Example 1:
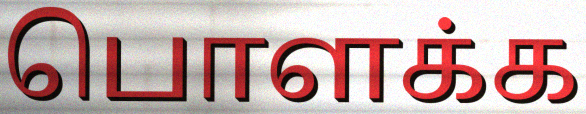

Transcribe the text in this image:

பொளக்க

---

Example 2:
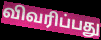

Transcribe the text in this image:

விவரிப்பது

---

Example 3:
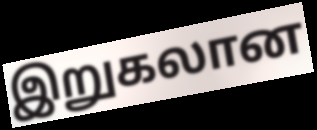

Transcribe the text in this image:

இறுகலான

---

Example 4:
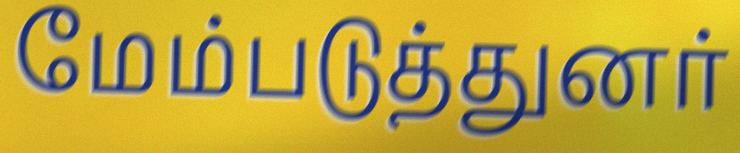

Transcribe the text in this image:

மேம்படுத்துனர்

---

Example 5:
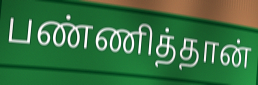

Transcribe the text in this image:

பண்ணித்தான்